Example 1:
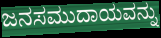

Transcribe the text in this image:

ಜನಸಮುದಾಯವನ್ನು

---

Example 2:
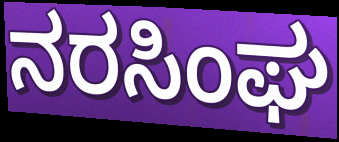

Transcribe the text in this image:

ನರಸಿಂಘ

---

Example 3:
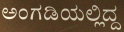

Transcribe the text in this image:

ಅಂಗಡಿಯಲ್ಲಿದ್ದ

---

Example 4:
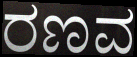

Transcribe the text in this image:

ರಣವ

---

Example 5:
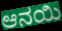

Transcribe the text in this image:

ಆನಯಿ